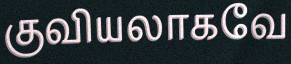
குவியலாகவே